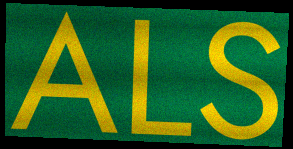
ALS